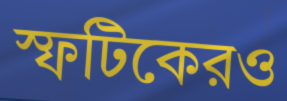
স্ফটিকেরও